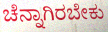
ಚೆನ್ನಾಗಿರಬೇಕು